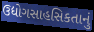
ઉદ્યોગસાહસિકતાનું